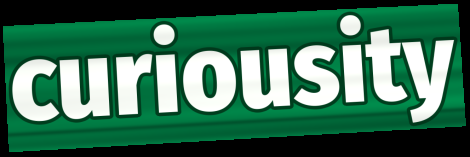
curiousity